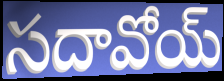
సదావోయ్